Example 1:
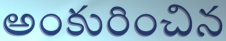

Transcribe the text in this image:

అంకురించిన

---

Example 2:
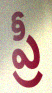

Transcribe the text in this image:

ప్రీ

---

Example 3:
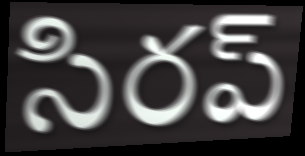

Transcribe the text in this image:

సిరప్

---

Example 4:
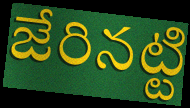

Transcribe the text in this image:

జేరినట్టి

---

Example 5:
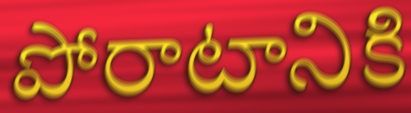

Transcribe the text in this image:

పోరాటానికి